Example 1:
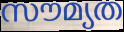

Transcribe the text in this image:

സൗമ്യത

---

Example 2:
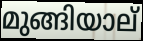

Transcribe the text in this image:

മുങ്ങിയാല്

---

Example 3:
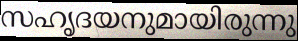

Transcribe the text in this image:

സഹൃദയനുമായിരുന്നു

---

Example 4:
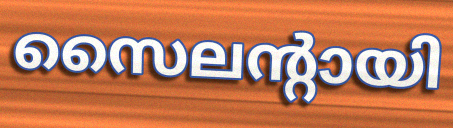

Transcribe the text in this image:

സൈലന്റായി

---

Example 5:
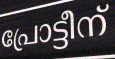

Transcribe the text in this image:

പ്രോട്ടീന്